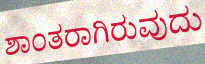
ಶಾಂತರಾಗಿರುವುದು